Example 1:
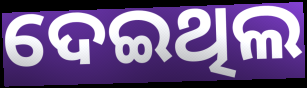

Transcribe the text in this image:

ଦେଇଥିଲ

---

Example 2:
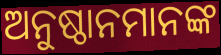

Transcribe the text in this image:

ଅନୁଷ୍ଠାନମାନଙ୍କ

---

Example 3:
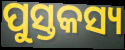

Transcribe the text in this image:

ପୁସ୍ତକସ୍ୟ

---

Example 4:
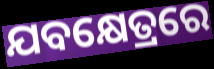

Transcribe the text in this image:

ଯବକ୍ଷେତ୍ରରେ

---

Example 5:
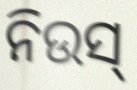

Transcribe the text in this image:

ନିଉସ୍